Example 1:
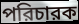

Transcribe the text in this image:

পরিচারক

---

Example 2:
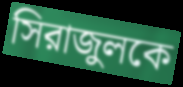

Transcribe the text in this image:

সিরাজুলকে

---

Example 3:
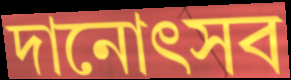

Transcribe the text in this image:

দানোৎসব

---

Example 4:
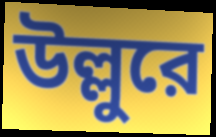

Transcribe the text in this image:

উল্লুরে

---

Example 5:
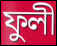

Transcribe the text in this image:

ফুলী